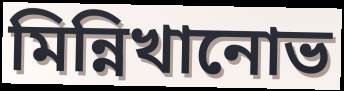
মিন্নিখানোভ